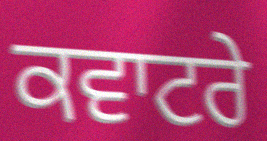
ਕਵਾਟਰੇ